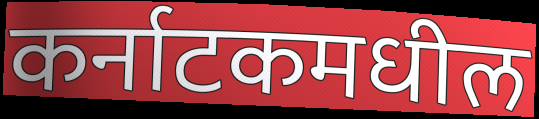
कर्नाटकमधील